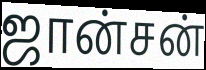
ஜான்சன்